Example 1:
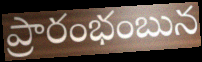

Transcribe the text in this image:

ప్రారంభంబున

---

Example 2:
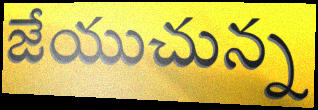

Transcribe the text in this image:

జేయుచున్న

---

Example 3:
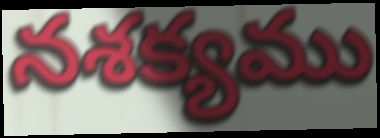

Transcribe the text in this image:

నశక్యము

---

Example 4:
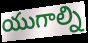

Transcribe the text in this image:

యుగాల్ని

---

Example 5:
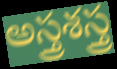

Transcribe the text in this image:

అస్త్రశస్త్ర